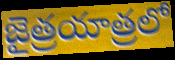
జైత్రయాత్రలో